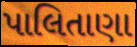
પાલિતાણા